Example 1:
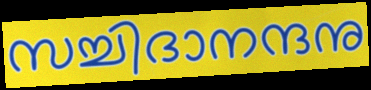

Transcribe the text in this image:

സച്ചിദാനന്ദനു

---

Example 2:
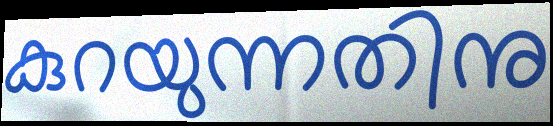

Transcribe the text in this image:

കുറയുന്നതിനു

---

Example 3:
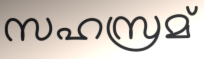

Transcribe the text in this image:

സഹസ്രമ്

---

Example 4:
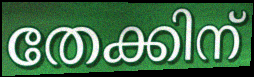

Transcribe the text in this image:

തേക്കിന്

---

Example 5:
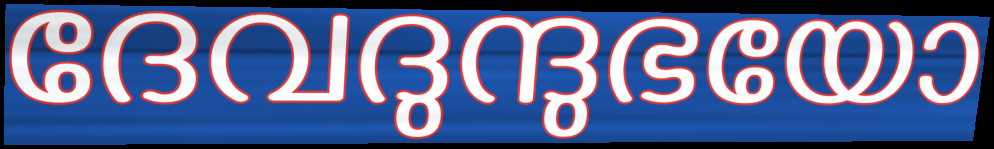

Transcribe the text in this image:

ദേവദുന്ദുഭയോ